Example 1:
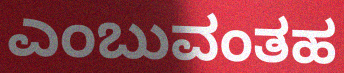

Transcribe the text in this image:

ಎಂಬುವಂತಹ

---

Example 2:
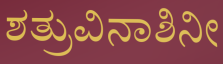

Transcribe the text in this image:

ಶತ್ರುವಿನಾಶಿನೀ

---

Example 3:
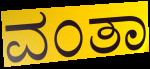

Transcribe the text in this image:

ವಂತಾ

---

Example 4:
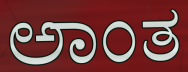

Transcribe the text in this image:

ಅಾಂತ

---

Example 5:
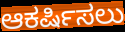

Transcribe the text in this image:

ಆಕರ್ಷಿಸಲು